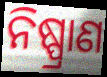
ନିଷ୍ପ୍ରାଣ